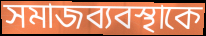
সমাজব্যবস্থাকে